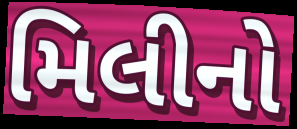
મિલીનો